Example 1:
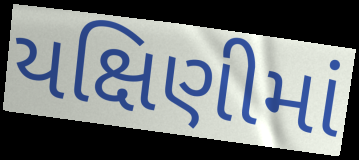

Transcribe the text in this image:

યક્ષિણીમાં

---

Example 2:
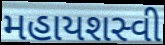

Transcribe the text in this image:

મહાયશસ્વી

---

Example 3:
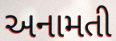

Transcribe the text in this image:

અનામતી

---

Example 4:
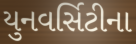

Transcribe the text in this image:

યુનવર્સિટીના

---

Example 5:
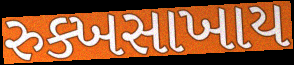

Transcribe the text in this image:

રુક્ખસાખાય